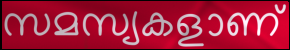
സമസ്യകളാണ്